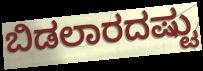
ಬಿಡಲಾರದಷ್ಟು